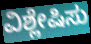
ವಿಶ್ಲೇಷಿಸು